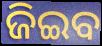
ଜିଇବ